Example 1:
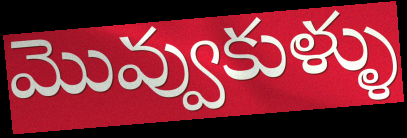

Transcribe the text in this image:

మొవ్వుకుళ్ళు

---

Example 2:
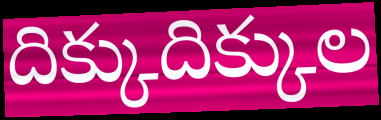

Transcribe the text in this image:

దిక్కుదిక్కుల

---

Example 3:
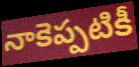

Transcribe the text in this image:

నాకెప్పటికీ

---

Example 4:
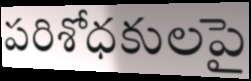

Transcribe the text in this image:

పరిశోధకులపై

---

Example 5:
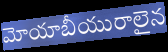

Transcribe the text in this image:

మోయాబీయురాలైన